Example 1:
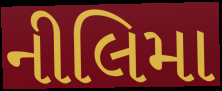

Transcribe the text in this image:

નીલિમા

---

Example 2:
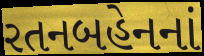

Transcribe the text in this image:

રતનબહેનનાં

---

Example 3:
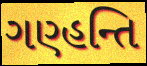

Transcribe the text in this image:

ગણ્હન્તિ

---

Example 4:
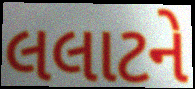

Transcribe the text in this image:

લલાટને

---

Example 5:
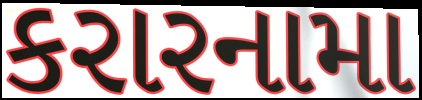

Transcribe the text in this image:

કરારનામા